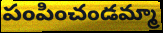
పంపించండమ్మా